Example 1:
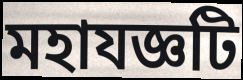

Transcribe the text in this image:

মহাযজ্ঞটি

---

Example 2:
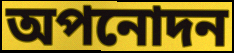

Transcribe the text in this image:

অপনোদন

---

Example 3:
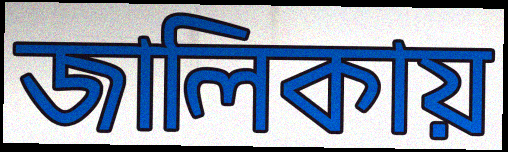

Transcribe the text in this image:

জালিকায়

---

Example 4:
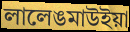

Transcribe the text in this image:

লালেঙমাউইয়া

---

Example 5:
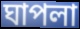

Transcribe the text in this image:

ঘাপলা